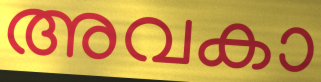
അവകാ